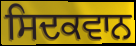
ਸਿਦਕਵਾਨ